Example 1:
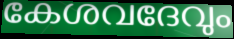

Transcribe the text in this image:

കേശവദേവും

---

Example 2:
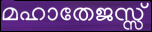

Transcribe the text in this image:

മഹാതേജസ്സ്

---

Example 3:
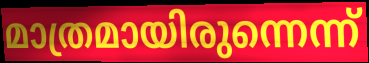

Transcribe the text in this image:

മാത്രമായിരുന്നെന്ന്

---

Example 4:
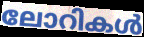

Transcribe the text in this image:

ലോറികൾ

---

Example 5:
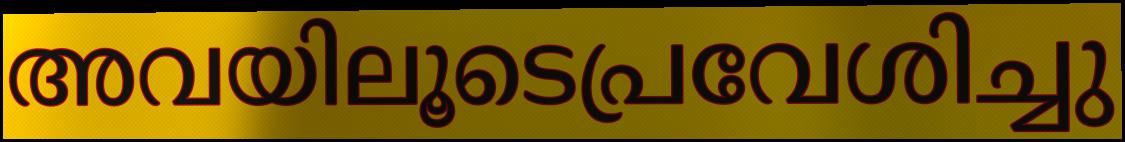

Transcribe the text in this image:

അവയിലൂടെപ്രവേശിച്ചു